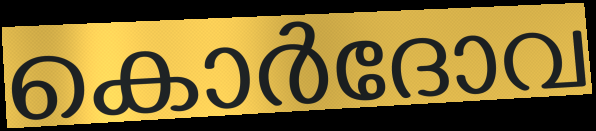
കൊർദോവ